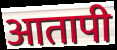
आतापी